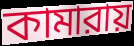
কামারায়